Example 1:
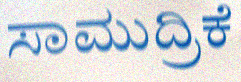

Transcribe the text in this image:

ಸಾಮುದ್ರಿಕೆ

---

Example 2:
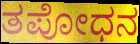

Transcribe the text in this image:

ತಪೋಧನ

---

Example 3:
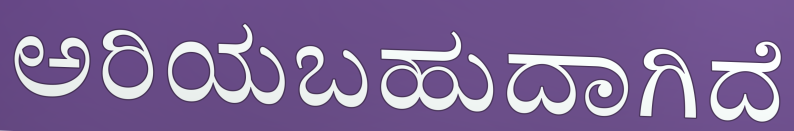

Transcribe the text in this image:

ಅರಿಯಬಹುದಾಗಿದೆ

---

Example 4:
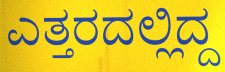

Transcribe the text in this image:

ಎತ್ತರದಲ್ಲಿದ್ದ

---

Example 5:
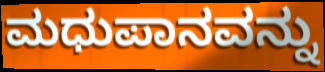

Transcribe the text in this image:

ಮಧುಪಾನವನ್ನು